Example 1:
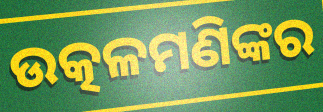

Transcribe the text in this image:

ଉତ୍କଳମଣିଙ୍କର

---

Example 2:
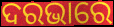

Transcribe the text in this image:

ଦରଭାରେ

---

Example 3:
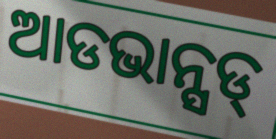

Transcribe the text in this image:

ଆଡଭାନ୍ସଡ୍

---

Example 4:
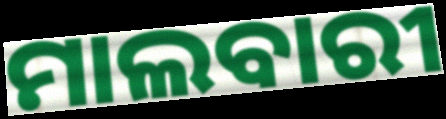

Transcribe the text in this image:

ମାଲବାରୀ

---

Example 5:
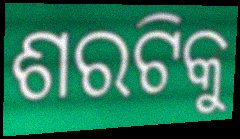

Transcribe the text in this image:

ଶରଟିକୁ